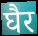
घैर